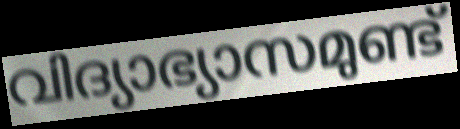
വിദ്യാഭ്യാസമുണ്ട്